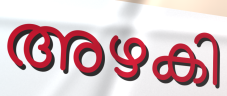
അഴകി